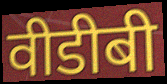
वीडीबी